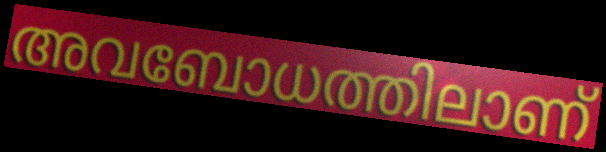
അവബോധത്തിലാണ്